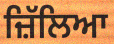
ਜ਼ਿੱਲਿਆ